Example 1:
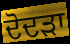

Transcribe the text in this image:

ਦੋਦੜਾ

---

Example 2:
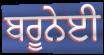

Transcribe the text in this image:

ਬਰੂਨੇਈ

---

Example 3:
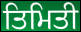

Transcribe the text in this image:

ਤਿਮਿਤੀ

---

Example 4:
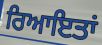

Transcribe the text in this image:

ਰਿਆਇਤਾਂ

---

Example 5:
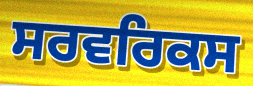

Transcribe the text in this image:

ਸਰਵਰਿਕਸ